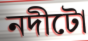
নদীটো